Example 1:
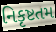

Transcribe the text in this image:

નિકૃષ્ટતમ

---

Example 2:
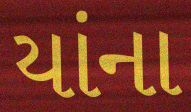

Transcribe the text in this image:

યાંના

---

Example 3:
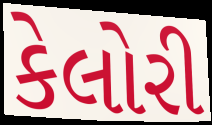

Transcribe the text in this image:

કેલોરી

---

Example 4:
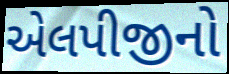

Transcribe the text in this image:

એલપીજીનો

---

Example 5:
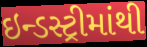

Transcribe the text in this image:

ઇન્ડસ્ટ્રીમાંથી